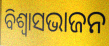
ବିଶ୍ଵାସଭାଜନ